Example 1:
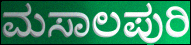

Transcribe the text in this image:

ಮಸಾಲಪುರಿ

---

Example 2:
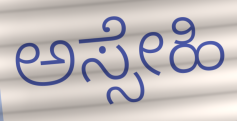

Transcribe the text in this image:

ಅಸ್ಸೇಹಿ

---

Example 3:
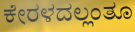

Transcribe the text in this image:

ಕೇರಳದಲ್ಲಂತೂ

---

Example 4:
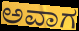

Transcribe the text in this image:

ಅವಾಗ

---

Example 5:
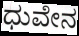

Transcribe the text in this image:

ಧುವೇನ